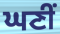
ਘਣੀਂ